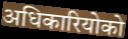
अधिकारियोको